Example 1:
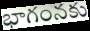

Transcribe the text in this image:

భాగంనకు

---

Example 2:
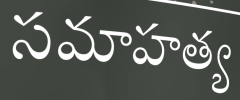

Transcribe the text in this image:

సమాహత్య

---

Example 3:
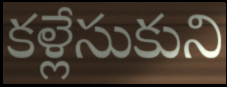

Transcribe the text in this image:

కళ్లేసుకుని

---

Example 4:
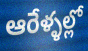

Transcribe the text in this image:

ఆరేళ్ళల్లో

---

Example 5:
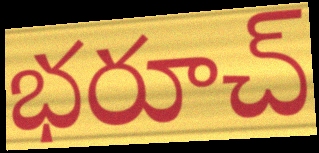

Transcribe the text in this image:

భరూచ్